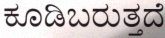
ಕೂಡಿಬರುತ್ತದೆ